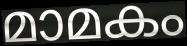
മാമകം